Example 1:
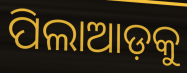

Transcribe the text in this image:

ପିଲାଆଡ଼କୁ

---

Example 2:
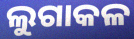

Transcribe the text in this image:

ଲୁଗାକଳ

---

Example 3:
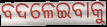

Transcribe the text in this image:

ବଦଳେଇବାକୁ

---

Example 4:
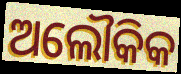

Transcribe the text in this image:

ଅଲୌକିକ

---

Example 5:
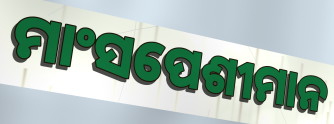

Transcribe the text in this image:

ମାଂସପେଶୀମାନ